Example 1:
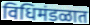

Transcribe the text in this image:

विधिमंडळात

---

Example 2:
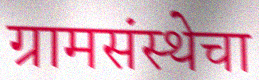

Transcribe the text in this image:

ग्रामसंस्थेचा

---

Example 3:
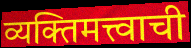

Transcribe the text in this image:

व्यक्तिमत्त्वाची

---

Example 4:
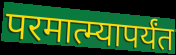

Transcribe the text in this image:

परमात्म्यापर्यंत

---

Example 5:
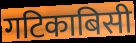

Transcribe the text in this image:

गटिकाबिसी